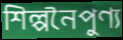
শিল্পনৈপুণ্য